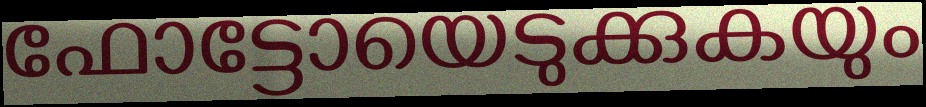
ഫോട്ടോയെടുക്കുകയും